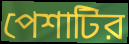
পেশাটির